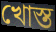
খোস্ত